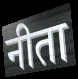
नीता